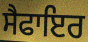
ਸੈਫਾਇਰ